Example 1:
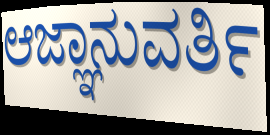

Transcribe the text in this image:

ಆಜ್ಞಾನುವರ್ತಿ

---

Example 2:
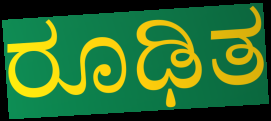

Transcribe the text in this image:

ರೂಢಿತ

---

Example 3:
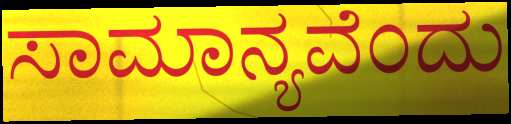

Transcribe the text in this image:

ಸಾಮಾನ್ಯವೆಂದು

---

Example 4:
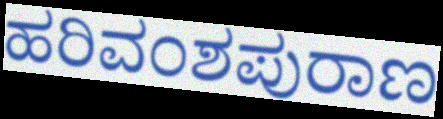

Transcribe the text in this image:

ಹರಿವಂಶಪುರಾಣ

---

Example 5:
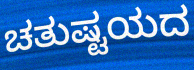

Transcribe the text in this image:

ಚತುಷ್ಟಯದ